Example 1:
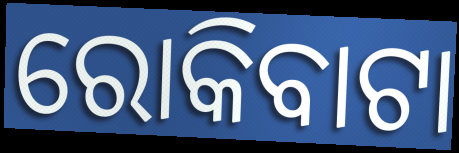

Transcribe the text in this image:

ରୋକିବାଟା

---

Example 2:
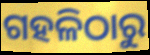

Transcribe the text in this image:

ଗହଳିଠାରୁ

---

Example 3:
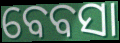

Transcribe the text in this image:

ବେବସା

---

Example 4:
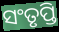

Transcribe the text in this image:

ସଂତୃପ୍ତି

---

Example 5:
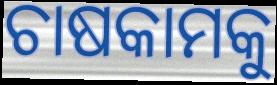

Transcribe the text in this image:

ଚାଷକାମକୁ